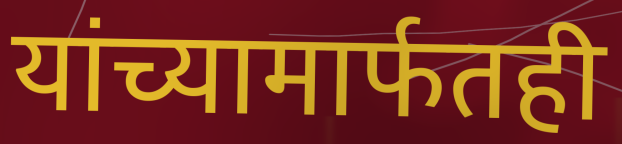
यांच्यामार्फतही